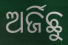
ଅର୍ଜିଛୁ